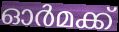
ഓർമക്ക്